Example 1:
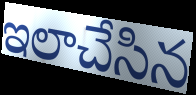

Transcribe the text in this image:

ఇలాచేసిన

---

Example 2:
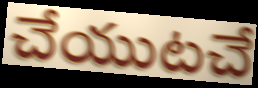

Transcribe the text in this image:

చేయుటచే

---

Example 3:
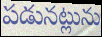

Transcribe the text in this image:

పడునట్లును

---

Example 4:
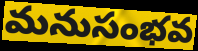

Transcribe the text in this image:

మనుసంభవ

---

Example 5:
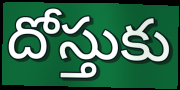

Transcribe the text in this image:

దోస్తుకు